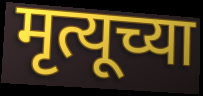
मृत्यूच्या